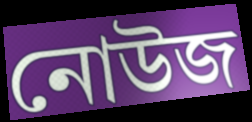
নোউজ